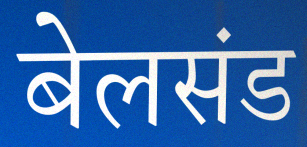
बेलसंड